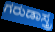
ಗರುಡಾಸ್ತ್ರ